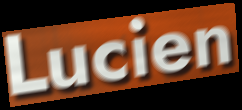
Lucien